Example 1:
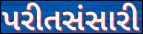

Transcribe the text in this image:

પરીતસંસારી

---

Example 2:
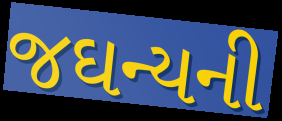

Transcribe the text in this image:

જઘન્યની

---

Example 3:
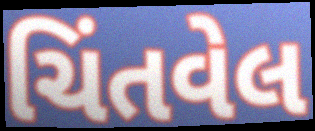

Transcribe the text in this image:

ચિંતવેલ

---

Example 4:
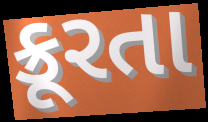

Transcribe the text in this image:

ક્રૂરતા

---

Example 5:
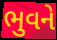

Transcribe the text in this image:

ભુવને